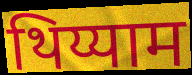
थिय्याम